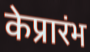
केप्रारंभ